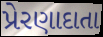
પ્રેરણાદાતા